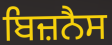
ਬਿਜ਼ਨੈਸ